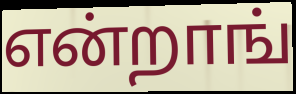
என்றாங்